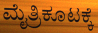
ಮೈತ್ರಿಕೂಟಕ್ಕೆ